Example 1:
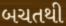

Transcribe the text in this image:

બચતથી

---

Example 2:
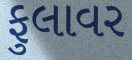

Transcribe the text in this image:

ફુલાવર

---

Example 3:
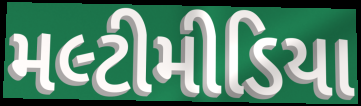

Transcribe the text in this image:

મલ્ટીમીડિયા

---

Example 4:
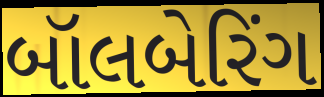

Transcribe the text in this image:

બૉલબેરિંગ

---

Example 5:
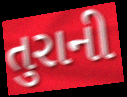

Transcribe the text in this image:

તુરાની